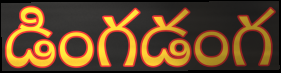
డింగడంగ